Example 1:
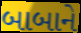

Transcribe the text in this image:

બાબાને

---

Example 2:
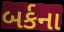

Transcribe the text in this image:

બર્કના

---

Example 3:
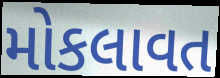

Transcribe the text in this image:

મોકલાવત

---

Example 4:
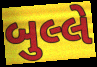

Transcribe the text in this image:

બુલ્લે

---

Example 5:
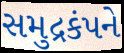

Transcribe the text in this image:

સમુદ્રકંપને